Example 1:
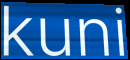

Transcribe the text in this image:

kuni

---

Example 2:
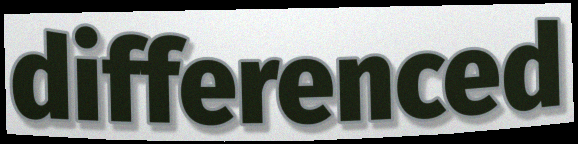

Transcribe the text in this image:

differenced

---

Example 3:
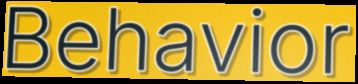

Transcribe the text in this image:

Behavior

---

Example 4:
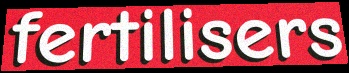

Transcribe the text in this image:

fertilisers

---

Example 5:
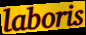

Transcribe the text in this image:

laboris